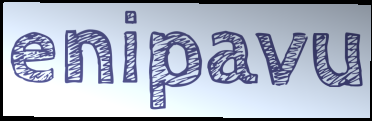
enipavu